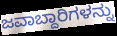
ಜವಾಬ್ದಾರಿಗಳನ್ನು